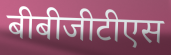
बीबीजीटीएस